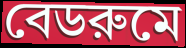
বেডরুমে